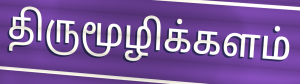
திருமூழிக்களம்